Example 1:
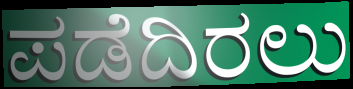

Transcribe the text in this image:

ಪಡೆದಿರಲು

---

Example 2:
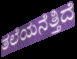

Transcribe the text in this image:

ತಲೆಯನೆತ್ತಿದೆ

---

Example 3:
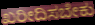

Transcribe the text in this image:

ಖರೀದಿಸಬೇಕು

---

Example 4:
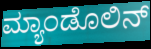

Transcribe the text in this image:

ಮ್ಯಾಂಡೊಲಿನ್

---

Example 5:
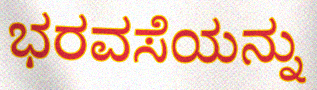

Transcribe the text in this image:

ಭರವಸೆಯನ್ನು